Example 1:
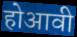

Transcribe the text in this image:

होआवी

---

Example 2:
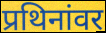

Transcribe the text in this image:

प्रथिनांवर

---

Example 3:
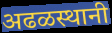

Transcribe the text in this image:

अढळस्थानी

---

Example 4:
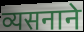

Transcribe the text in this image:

व्यसनाने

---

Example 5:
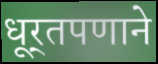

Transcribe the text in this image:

धूर्तपणाने